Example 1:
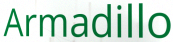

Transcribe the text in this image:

Armadillo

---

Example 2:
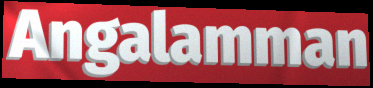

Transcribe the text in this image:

Angalamman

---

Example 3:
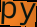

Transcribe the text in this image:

py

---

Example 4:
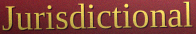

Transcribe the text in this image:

Jurisdictional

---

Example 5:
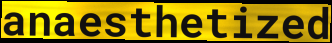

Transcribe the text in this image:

anaesthetized